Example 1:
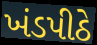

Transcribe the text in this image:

ખંડપીઠે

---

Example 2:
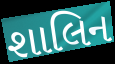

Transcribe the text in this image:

શાલિન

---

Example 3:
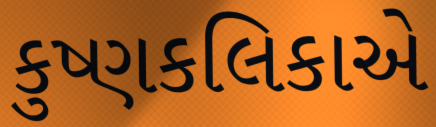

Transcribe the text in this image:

કુષ્ણકલિકાએ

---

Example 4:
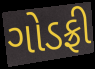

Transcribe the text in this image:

ગોડફ્રી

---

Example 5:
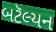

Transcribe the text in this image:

બટૅલ્યન